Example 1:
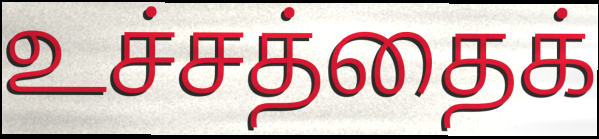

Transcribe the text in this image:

உச்சத்தைக்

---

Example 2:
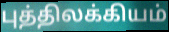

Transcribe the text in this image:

புத்திலக்கியம்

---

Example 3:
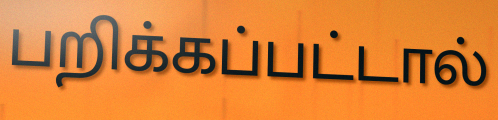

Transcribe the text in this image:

பறிக்கப்பட்டால்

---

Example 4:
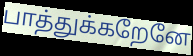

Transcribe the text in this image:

பாத்துக்கறேனே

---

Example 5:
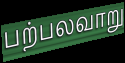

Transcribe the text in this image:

பற்பலவாறு